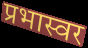
प्रभास्वर